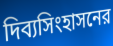
দিব্যসিংহাসনের